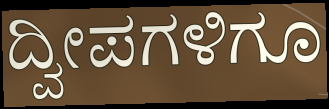
ದ್ವೀಪಗಳಿಗೂ